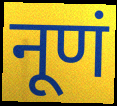
नूणं